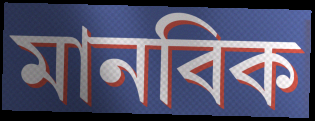
মানবিক